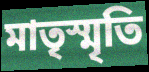
মাতৃস্মৃতি